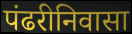
पंढरीनिवासा